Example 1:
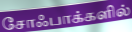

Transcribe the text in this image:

சோஃபாக்களில்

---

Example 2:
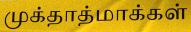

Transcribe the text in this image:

முக்தாத்மாக்கள்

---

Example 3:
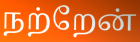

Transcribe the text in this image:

நற்றேன்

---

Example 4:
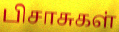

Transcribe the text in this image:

பிசாசுகள்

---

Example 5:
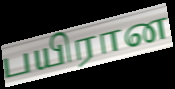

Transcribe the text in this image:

பயிரான